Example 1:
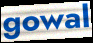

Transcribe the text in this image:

gowal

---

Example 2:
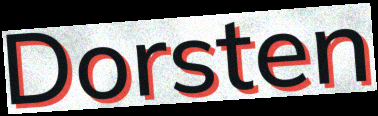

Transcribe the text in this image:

Dorsten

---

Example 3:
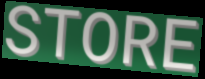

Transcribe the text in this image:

STORE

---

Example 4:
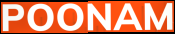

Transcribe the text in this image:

POONAM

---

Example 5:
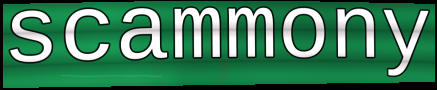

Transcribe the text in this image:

scammony